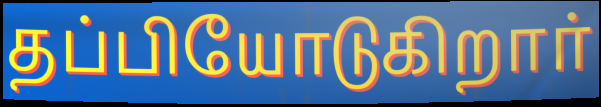
தப்பியோடுகிறார்